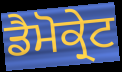
ਡੈਮੋਕ੍ਰੇਟ